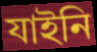
যাইনি